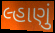
લ્હાણું